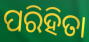
ପରିହିତା